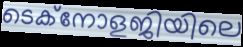
ടെക്നോളജിയിലെ